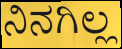
ನಿನಗಿಲ್ಲ